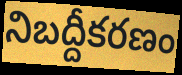
నిబద్దీకరణం